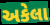
અકેલા